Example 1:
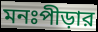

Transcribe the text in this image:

মনঃপীড়ার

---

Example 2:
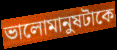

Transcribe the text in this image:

ভালোমানুষটাকে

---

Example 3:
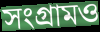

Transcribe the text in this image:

সংগ্রামও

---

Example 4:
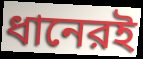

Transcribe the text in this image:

ধানেরই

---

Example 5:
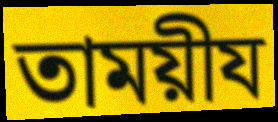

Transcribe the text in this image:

তাময়ীয